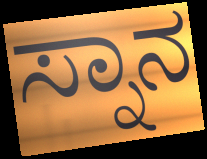
ಸ್ನಾನ